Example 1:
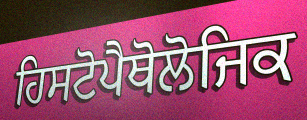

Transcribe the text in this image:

ਹਿਸਟੋਪੈਥੋਲੋਜਿਕ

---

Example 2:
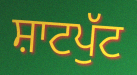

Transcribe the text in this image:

ਸ਼ਾਟਪੁੱਟ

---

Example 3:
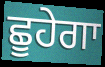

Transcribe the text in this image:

ਛੂਹੇਗਾ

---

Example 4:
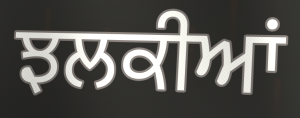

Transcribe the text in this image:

ਝਲਕੀਆਂ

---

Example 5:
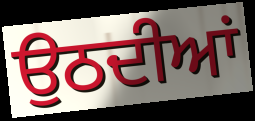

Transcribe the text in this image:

ਉਠਦੀਆਂ